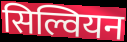
सिल्वियन